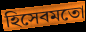
হিসেবমতো